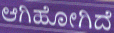
ಆಗಿಹೋಗಿದೆ